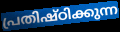
പ്രതിഷ്ഠിക്കുന്ന